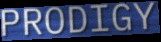
PRODIGY